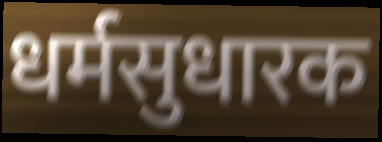
धर्मसुधारक